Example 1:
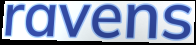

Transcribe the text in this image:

ravens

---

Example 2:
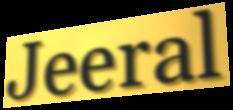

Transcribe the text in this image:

Jeeral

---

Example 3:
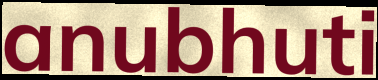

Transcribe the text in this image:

anubhuti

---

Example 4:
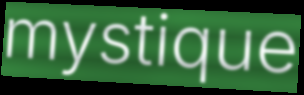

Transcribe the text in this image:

mystique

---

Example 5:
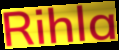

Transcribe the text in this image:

Rihla